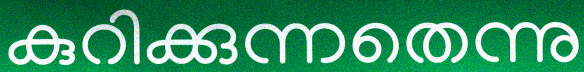
കുറിക്കുന്നതെന്നു